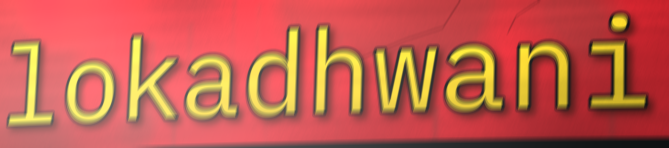
lokadhwani